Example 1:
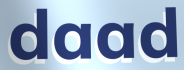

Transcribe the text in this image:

daad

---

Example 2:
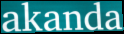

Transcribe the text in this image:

akanda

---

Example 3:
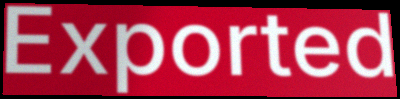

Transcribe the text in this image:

Exported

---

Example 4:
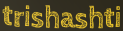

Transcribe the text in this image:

trishashti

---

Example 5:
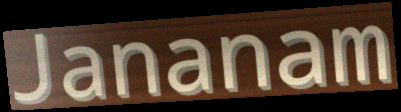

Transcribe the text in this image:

Jananam